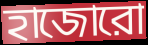
হাজোরো